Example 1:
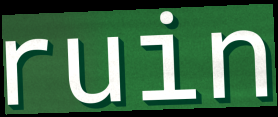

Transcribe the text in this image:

ruin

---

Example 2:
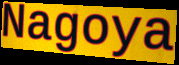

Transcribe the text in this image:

Nagoya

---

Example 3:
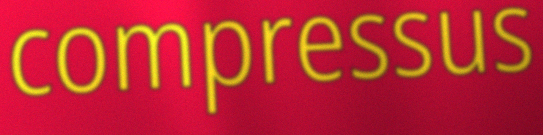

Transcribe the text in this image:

compressus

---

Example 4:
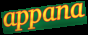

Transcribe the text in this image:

appana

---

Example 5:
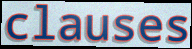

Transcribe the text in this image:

clauses